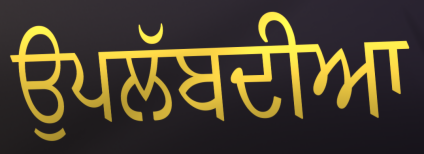
ਉਪਲੱਬਦੀਆ